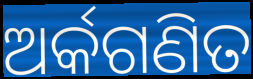
ଅର୍କଗଣିତ